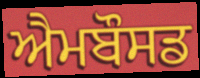
ਐਮਬੌਸਡ